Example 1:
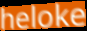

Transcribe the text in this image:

heloke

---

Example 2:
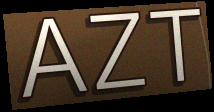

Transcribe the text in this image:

AZT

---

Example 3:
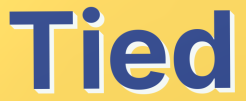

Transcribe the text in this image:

Tied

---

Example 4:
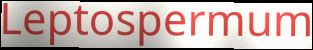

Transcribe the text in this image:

Leptospermum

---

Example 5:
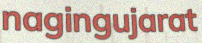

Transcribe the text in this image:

nagingujarat